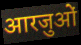
आरजुओं